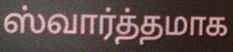
ஸ்வார்த்தமாக